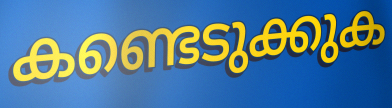
കണ്ടെടുക്കുക